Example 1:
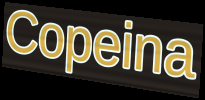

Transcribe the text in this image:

Copeina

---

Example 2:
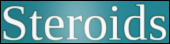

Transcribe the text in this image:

Steroids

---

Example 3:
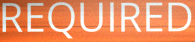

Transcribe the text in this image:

REQUIRED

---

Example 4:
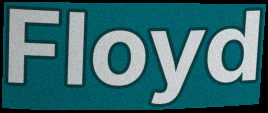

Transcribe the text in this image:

Floyd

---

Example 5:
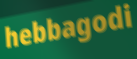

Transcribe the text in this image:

hebbagodi